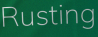
Rusting